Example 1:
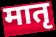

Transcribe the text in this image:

मातृ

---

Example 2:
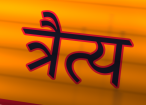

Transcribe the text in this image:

त्रैत्य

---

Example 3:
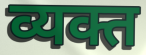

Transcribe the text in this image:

व्यक्त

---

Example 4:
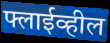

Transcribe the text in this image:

फ्लाईव्हील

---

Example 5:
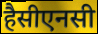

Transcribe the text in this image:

हैसीएनसी